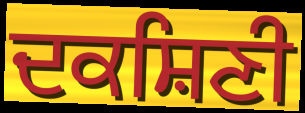
ਦਕਸ਼ਿਣੀ